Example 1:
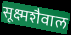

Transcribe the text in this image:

सूक्ष्मशैवाल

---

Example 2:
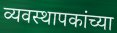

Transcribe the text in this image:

व्यवस्थापकांच्या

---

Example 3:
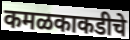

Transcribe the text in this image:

कमळकाकडीचे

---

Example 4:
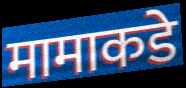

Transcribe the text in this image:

मामाकडे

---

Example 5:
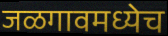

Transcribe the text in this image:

जळगावमध्येच